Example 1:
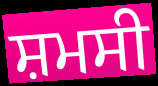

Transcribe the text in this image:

ਸ਼ਮਸੀ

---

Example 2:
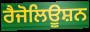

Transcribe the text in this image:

ਰੈਜੋਲਿਊਸ਼ਨ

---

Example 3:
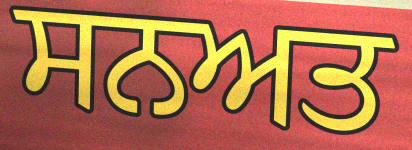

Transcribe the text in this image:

ਸਨਅਤ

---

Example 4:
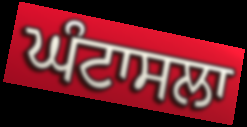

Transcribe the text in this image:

ਘੰਟਾਸਲਾ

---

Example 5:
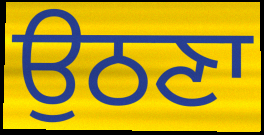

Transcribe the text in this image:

ਉਠਣਾ